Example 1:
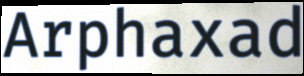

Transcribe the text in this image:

Arphaxad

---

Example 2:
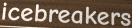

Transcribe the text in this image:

icebreakers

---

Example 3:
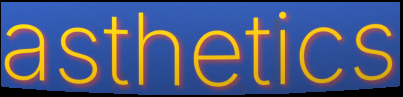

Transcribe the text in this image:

asthetics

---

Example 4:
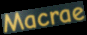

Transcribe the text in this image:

Macrae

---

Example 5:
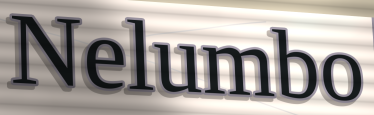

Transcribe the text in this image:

Nelumbo